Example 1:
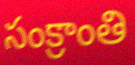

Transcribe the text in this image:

సంక్రాంతి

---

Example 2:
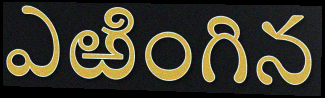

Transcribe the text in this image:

ఎఱింగిన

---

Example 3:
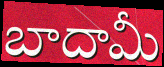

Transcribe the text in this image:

బాదామీ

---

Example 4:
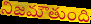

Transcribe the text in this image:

నిజమౌతుంది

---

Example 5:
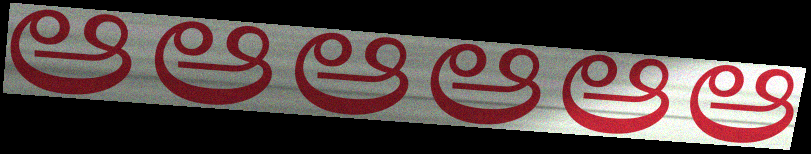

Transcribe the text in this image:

ఆఆఆఆఆఆ